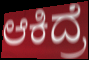
ಆಕಿದ್ರೆ